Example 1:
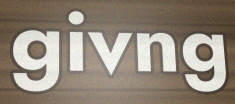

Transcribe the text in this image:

givng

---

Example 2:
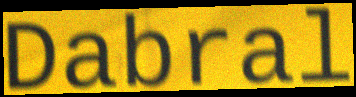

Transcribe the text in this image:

Dabral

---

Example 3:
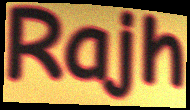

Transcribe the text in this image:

Rajh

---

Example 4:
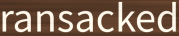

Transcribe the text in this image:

ransacked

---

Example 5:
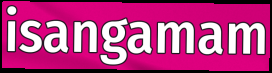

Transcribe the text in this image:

isangamam